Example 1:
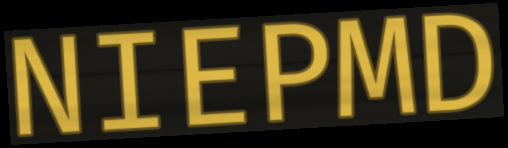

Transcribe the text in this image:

NIEPMD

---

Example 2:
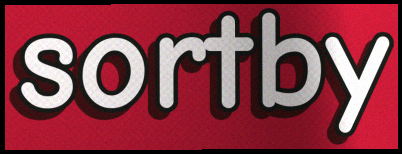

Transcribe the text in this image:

sortby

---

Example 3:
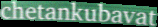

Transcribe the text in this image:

chetankubavat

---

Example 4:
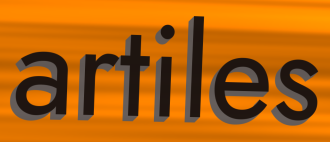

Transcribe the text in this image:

artiles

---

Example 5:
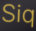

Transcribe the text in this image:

Siq